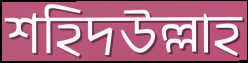
শহিদউল্লাহ